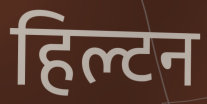
हिल्टन